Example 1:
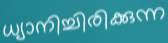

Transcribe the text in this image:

ധ്യാനിച്ചിരിക്കുന്ന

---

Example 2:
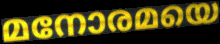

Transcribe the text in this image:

മനോരമയെ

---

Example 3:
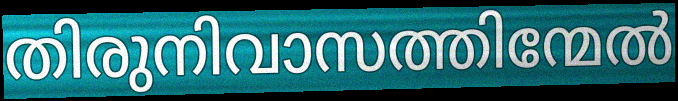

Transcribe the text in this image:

തിരുനിവാസത്തിന്മേൽ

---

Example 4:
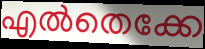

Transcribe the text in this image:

എൽതെക്കേ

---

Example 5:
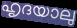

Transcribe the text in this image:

ഹൃദയാലു